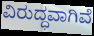
ವಿರುದ್ಧವಾಗಿವೆ